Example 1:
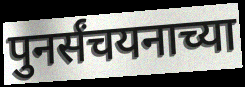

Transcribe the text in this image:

पुनर्संचयनाच्या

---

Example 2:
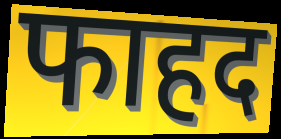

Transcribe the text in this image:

फाहद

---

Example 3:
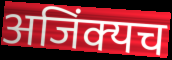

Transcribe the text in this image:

अजिंक्यच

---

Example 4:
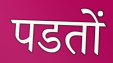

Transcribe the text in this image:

पडतों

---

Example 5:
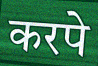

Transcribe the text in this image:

करपे